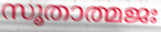
സൂതാത്മജഃ